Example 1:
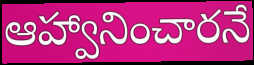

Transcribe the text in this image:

ఆహ్వానించారనే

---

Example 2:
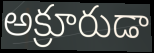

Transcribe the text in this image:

అక్రూరుడా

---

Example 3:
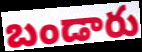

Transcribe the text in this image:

బండారు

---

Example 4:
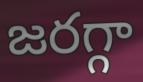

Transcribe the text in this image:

జరగ్గా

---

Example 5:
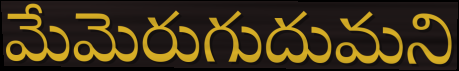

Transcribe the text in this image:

మేమెరుగుదుమని